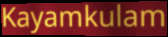
Kayamkulam